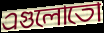
এগুলোতো